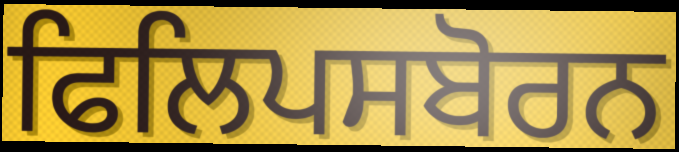
ਫਿਲਿਪਸਬੋਰਨ